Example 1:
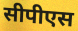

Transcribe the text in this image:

सीपीएस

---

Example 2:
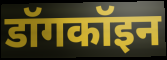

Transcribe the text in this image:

डॉगकॉइन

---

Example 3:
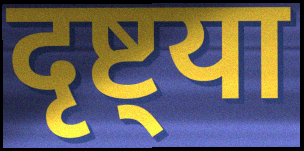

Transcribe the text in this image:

दृष्ट्या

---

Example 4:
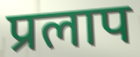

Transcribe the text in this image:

प्रलाप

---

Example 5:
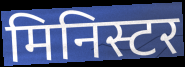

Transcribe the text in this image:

मिनिस्टर